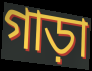
গাড়া